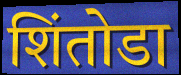
शिंतोडा